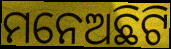
ମନେଅଛିଟି